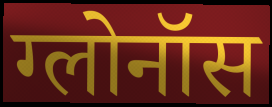
ग्लोनॉस